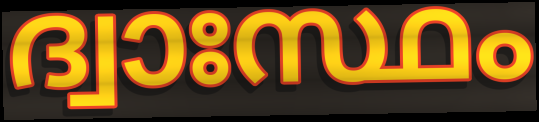
ദ്വാഃസ്ഥം